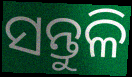
ସନ୍ତୁଳି